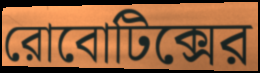
রোবোটিক্সের